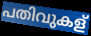
പതിവുകള്